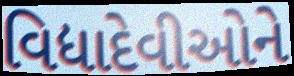
વિદ્યાદેવીઓને